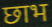
छाभ